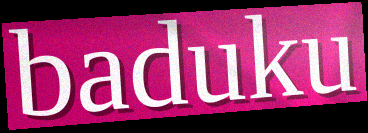
baduku